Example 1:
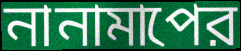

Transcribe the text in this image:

নানামাপের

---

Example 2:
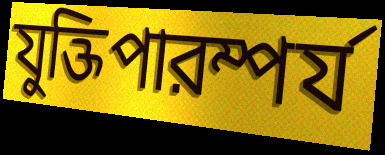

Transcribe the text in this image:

যুক্তিপারম্পর্য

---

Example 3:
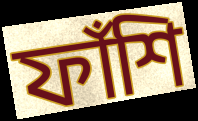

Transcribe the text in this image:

ফাঁশি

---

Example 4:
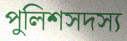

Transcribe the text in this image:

পুলিশসদস্য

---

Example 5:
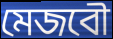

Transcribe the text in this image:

মেজবৌ